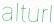
alturl